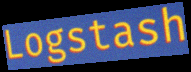
Logstash